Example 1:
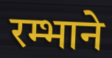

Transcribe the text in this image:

रम्भाने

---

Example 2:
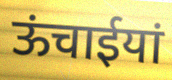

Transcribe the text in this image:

ऊंचाईयां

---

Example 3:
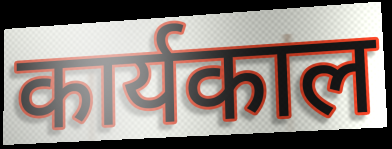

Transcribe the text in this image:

कार्यकाल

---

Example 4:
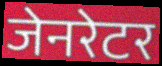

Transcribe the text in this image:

जेनरेटर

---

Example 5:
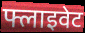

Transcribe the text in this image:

फ्लाइवेट